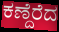
ಕಣ್ದೆರೆದ